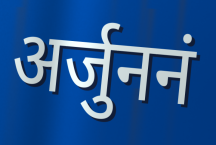
अर्जुननं